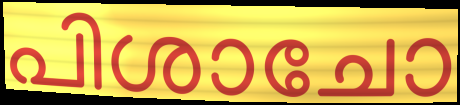
പിശാചോ